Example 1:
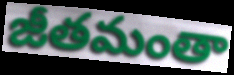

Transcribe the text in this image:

జీతమంతా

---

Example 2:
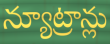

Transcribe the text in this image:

న్యూట్రాన్లు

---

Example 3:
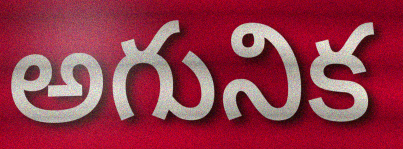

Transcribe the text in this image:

అగునిక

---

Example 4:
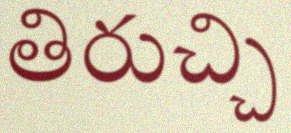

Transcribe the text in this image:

తిరుచ్చి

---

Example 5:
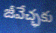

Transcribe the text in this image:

జీవేచ్ఛకు